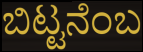
ಬಿಟ್ಟನೆಂಬ